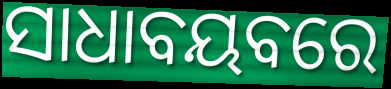
ସାଧାବୟବରେ